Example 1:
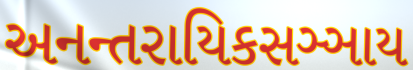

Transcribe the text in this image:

અનન્તરાયિકસઞ્ઞાય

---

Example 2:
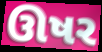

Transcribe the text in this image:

ઊષર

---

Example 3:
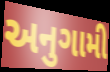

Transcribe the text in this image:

અનુગામી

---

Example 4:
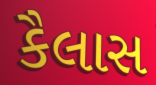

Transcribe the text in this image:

કૈલાસ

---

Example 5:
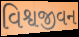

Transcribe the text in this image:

વિશ્વજીવન